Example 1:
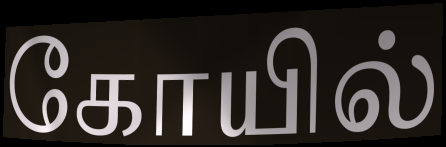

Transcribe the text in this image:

கோயில்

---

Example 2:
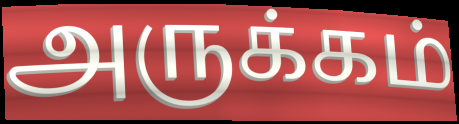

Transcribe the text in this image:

அருக்கம்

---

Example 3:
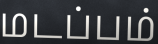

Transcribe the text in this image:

மடப்பம்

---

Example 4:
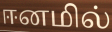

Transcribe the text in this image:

ஈனமில்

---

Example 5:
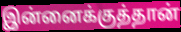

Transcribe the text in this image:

இன்னைக்குத்தான்